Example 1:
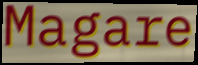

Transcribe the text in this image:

Magare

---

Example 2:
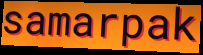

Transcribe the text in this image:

samarpak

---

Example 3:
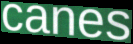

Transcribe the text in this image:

canes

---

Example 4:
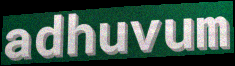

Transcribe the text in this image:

adhuvum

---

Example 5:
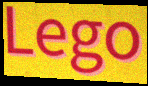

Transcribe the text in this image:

Lego